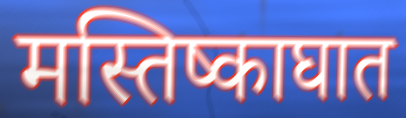
मस्तिष्काघात